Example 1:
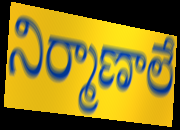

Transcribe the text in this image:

నిర్మాణాలే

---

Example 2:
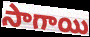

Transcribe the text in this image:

సాగాయి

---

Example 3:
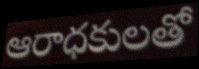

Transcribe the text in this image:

ఆరాధకులతో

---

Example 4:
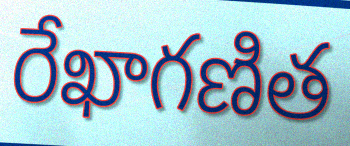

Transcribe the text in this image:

రేఖాగణిత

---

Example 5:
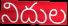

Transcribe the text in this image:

నిదుల